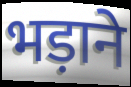
भड़ाने